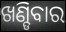
ଖଣ୍ଡିବାର